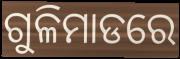
ଗୁଳିମାଡରେ